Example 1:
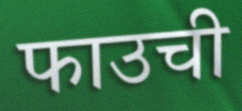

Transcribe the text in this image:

फाउची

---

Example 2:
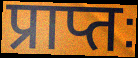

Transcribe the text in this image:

प्राप्तः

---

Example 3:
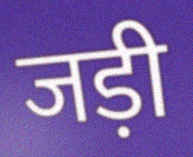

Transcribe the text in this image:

जड़ी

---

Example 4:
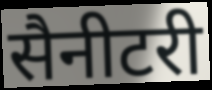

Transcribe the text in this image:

सैनीटरी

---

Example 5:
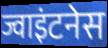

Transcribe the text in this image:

ज्वाइंटनेस